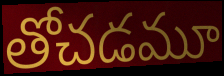
తోచడమూ